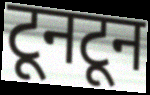
टूनटून